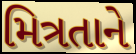
મિત્રતાને